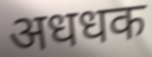
अधधक